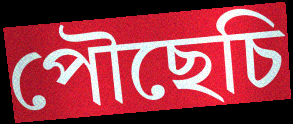
পৌছেচি